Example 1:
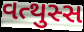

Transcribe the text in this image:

વત્થુસ્સ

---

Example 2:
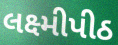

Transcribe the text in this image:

લક્ષ્મીપીઠ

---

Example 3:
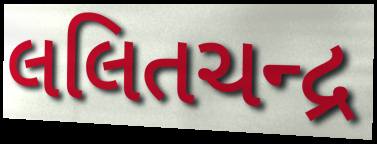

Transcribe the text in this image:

લલિતચન્દ્ર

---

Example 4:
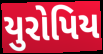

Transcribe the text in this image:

યુરોપિય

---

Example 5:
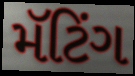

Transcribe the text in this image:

મૅટિંગ